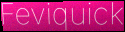
Feviquick